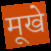
मूखे